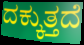
ದಕ್ಕುತ್ತದೆ